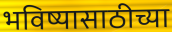
भविष्यासाठीच्या